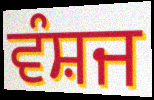
ਵੰਸ਼ਜ